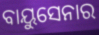
ବାୟୁସେନାର